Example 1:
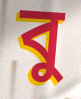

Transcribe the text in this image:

বু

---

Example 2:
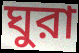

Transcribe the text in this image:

ঘুরা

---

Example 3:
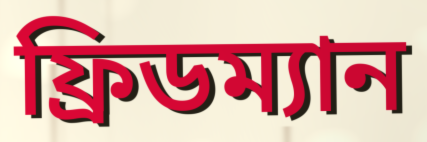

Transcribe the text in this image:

ফ্রিডম্যান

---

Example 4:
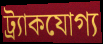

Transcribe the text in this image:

ট্র্যাকযোগ্য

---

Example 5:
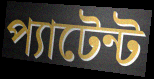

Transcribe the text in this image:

প্যাটেন্ট